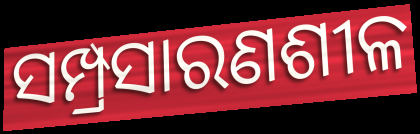
ସମ୍ପ୍ରସାରଣଶୀଳ